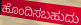
ಹೊಂದಿಸಬಹುದು